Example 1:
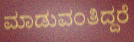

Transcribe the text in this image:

ಮಾಡುವಂತಿದ್ದರೆ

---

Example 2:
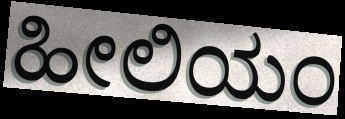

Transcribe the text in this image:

ಹೀಲಿಯಂ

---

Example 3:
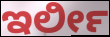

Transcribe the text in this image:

ಇರ್ಲೀ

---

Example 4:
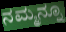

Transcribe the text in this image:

ನಮ್ಮನ್ನೂ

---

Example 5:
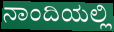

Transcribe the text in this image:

ನಾಂದಿಯಲ್ಲಿ